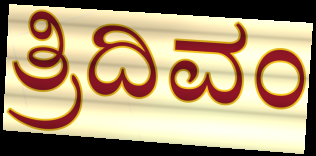
ತ್ರಿದಿವಂ